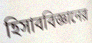
হিসাববিজ্ঞানের